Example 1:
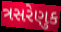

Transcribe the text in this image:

ત્રસરેણુક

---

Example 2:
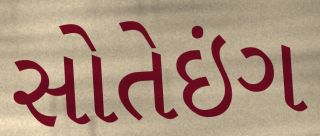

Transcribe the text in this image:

સોતેઇંગ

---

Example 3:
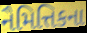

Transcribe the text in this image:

નૈમિત્તિકના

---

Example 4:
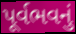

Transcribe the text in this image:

પૂર્વભવનું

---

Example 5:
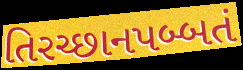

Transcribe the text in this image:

તિરચ્છાનપબ્બતં